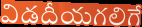
విడదీయగలిగే